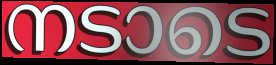
നടാടെ